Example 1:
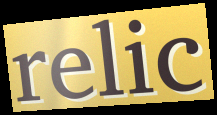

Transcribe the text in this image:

relic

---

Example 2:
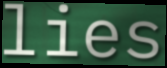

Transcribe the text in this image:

lies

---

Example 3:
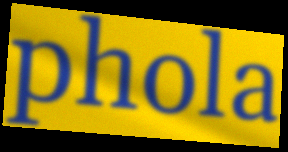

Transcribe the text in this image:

phola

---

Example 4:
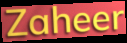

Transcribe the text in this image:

Zaheer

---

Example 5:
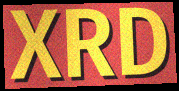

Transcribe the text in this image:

XRD